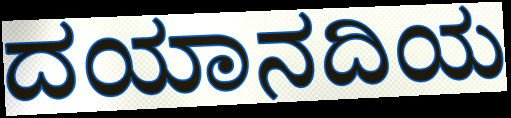
ದಯಾನದಿಯ